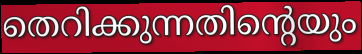
തെറിക്കുന്നതിന്റെയും